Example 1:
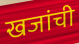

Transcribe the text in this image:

खजांची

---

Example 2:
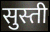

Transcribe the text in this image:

सुस्‍ती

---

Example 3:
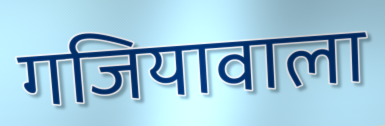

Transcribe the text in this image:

गजियावाला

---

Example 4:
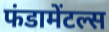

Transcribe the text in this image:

फंडामेंटल्स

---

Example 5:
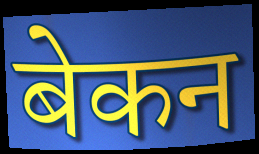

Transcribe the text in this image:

बेकन